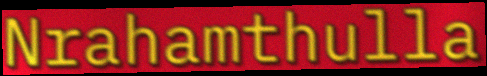
Nrahamthulla